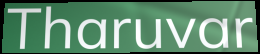
Tharuvar